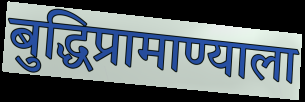
बुद्धिप्रामाण्याला